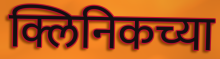
क्लिनिकच्या